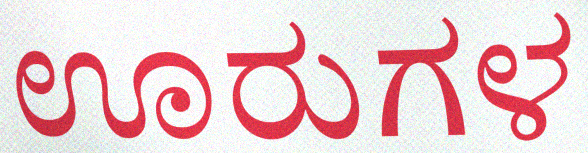
ಊರುಗಳ